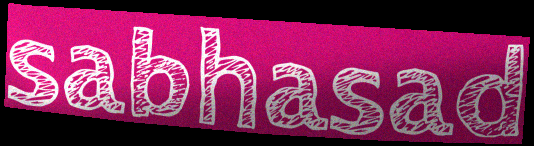
sabhasad